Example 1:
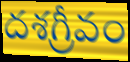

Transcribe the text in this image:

దశగ్రీవం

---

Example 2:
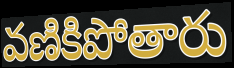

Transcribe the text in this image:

వణికిపోతారు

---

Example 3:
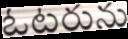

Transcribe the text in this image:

ఓటరును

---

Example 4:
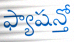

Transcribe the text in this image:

ఫ్యాషన్తో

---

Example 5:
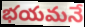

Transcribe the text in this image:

భయమనే